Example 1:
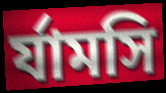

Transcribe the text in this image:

র্যামসি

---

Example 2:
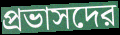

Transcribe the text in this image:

প্রভাসদের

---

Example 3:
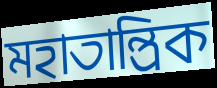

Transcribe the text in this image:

মহাতান্ত্রিক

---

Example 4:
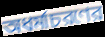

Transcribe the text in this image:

অধর্মাচরণের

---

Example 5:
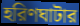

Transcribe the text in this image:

হরিণঘাটার